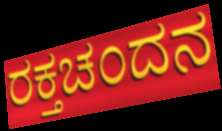
ರಕ್ತಚಂದನ